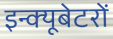
इन्क्यूबेटरों